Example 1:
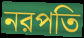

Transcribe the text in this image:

নরপতি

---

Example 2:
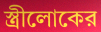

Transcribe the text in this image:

স্ত্রীলোকের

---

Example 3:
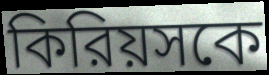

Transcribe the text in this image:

কিরিয়সকে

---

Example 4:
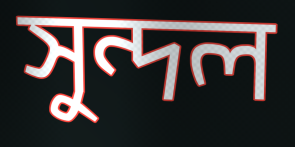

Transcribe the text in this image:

সুন্দল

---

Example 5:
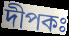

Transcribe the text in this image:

দীপকঃ